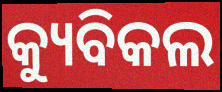
କ୍ୟୁବିକଲ